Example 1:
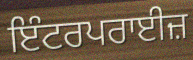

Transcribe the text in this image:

ਇੰਟਰਪਰਾਈਜ਼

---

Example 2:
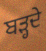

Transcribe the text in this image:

ਬੜ੍ਹਦੇ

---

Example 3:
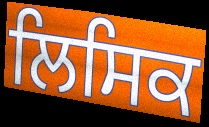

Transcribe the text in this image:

ਲਿਸਿਕ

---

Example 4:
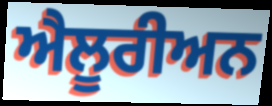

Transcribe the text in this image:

ਐਲੂਰੀਅਨ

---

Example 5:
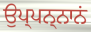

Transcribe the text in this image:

ਉਪ੍ਪਨ੍ਨਾਨਂ